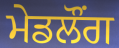
ਮੇਡਲੌਂਗ